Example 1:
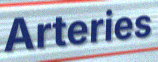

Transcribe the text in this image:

Arteries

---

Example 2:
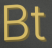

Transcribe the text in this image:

Bt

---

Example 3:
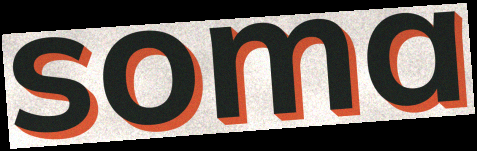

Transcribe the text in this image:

soma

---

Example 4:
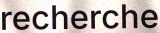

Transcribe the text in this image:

recherche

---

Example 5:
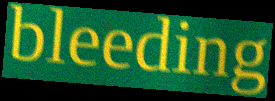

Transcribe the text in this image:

bleeding